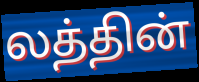
லத்தின்